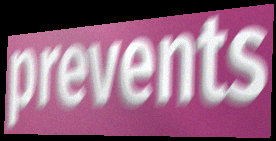
prevents